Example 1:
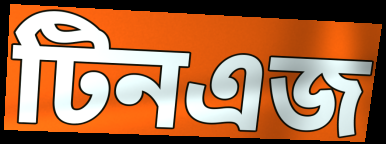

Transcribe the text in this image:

টিনএজ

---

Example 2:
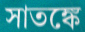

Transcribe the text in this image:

সাতঙ্কে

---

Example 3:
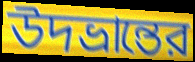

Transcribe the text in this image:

উদভ্রান্তের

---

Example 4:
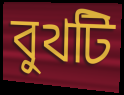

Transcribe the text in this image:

বুথটি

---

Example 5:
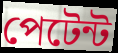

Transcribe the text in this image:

পেটেন্ট